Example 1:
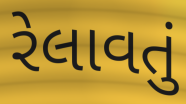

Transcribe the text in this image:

રેલાવતું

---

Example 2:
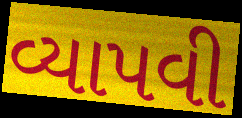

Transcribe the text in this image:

વ્યાપવી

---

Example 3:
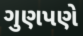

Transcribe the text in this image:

ગુણપણે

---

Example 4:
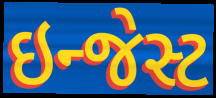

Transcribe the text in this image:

ઇન્જેસ્ટ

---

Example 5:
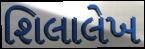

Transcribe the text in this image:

શિલાલેખ